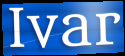
Ivar